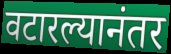
वटारल्यानंतर